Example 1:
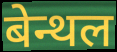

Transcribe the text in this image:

बेन्थल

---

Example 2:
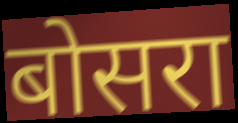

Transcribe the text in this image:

बोसरा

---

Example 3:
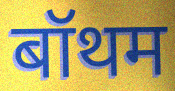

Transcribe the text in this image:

बॉथम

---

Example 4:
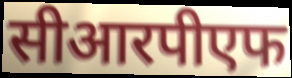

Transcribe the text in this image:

सीआरपीएफ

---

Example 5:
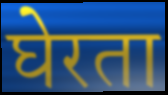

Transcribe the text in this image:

घेरता